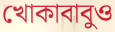
খোকাবাবুও